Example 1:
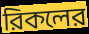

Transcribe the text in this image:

রিকলের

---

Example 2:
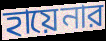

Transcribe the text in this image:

হায়েনার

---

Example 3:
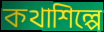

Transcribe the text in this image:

কথাশিল্পে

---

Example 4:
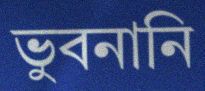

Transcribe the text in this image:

ভুবনানি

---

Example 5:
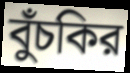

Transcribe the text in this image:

বুঁচকির